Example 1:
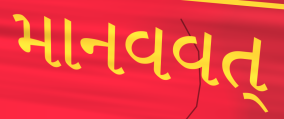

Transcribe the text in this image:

માનવવત્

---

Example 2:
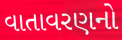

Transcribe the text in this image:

વાતાવરણનો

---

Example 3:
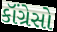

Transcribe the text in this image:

કૉંગ્રેસો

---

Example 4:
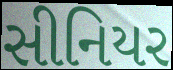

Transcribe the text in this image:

સીનિયર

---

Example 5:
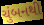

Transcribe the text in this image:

ચુંબનથી